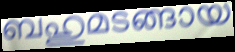
ബഹുമടങ്ങായ